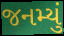
જનમ્યું